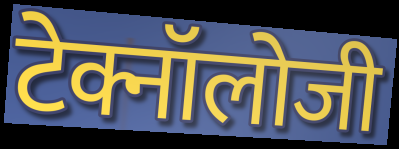
टेक्नॉलोजी